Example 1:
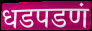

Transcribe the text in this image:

धडपडणं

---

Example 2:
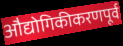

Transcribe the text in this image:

औद्योगिकीकरणपूर्व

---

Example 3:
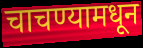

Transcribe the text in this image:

चाचण्यामधून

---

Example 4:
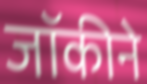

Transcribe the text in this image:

जॉकीने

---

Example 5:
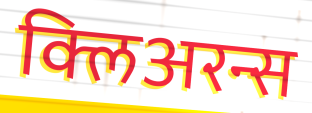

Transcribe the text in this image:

क्लिअरन्स